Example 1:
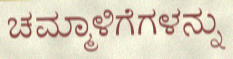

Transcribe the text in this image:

ಚಮ್ಮಾಳಿಗೆಗಳನ್ನು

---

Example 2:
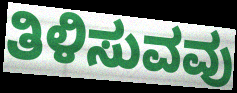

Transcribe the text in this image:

ತಿಳಿಸುವವು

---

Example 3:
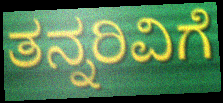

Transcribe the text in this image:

ತನ್ನರಿವಿಗೆ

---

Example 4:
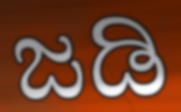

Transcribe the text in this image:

ಜಡಿ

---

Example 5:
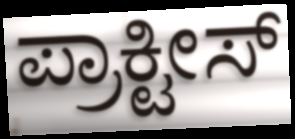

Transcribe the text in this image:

ಪ್ರಾಕ್ಟೀಸ್